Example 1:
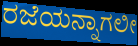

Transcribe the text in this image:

ರಜೆಯನ್ನಾಗಲೀ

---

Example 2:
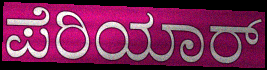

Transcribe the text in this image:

ಪೆರಿಯಾರ್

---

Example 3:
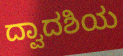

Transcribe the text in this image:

ದ್ವಾದಶಿಯ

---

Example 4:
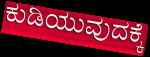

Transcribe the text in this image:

ಕುಡಿಯುವುದಕ್ಕೆ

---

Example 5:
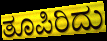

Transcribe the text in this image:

ತೂಪಿರಿದು